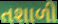
તશાળી